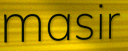
masir